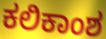
ಕಲಿಕಾಂಶ